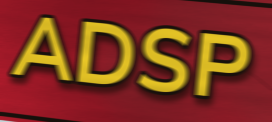
ADSP